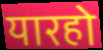
यारहो